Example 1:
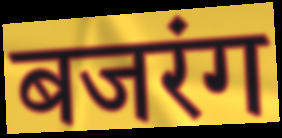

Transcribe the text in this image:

बजरंग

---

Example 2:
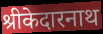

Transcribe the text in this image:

श्रीकेदारनाथ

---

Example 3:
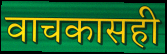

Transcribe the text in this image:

वाचकासही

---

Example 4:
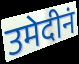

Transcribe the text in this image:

उमेदीनं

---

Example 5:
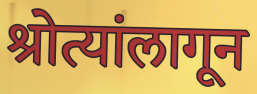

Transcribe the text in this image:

श्रोत्यांलागून